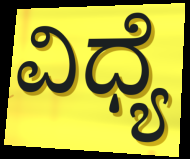
ವಿಧ್ಯೆ